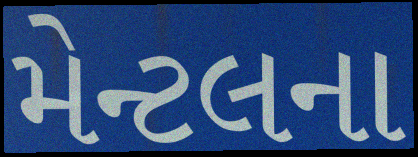
મેન્ટલના